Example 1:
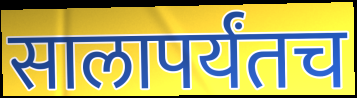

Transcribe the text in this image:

सालापर्यंतच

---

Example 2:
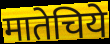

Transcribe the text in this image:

मातेचिये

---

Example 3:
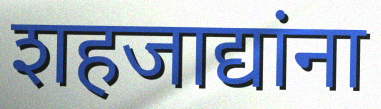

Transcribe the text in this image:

शहजाद्यांना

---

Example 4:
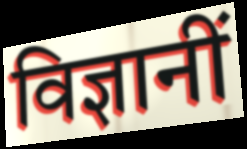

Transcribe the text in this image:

विज्ञानीं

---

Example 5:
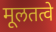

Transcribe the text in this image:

मूलतत्वे